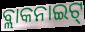
ବ୍ଲାକନାଇଟ୍